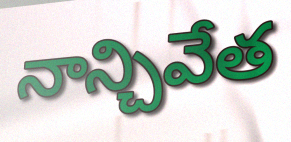
నాన్చివేత